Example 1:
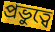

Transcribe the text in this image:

প্রভুত্বে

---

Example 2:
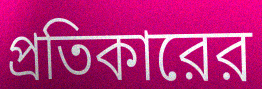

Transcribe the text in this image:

প্রতিকারের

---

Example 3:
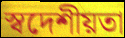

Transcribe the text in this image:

স্বদেশীয়তা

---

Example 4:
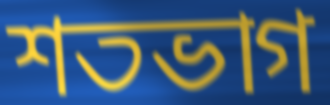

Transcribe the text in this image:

শতভাগ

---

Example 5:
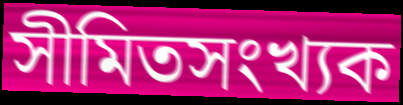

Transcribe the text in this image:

সীমিতসংখ্যক